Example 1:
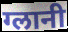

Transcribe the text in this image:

ग्लानी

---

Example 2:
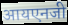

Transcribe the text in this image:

आयएनजी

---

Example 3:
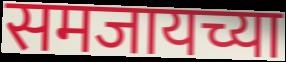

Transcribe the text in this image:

समजायच्या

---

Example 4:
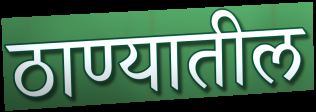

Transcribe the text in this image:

ठाण्यातील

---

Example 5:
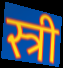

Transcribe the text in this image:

स्त्री